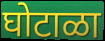
घोटाळा